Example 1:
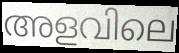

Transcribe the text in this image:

അളവിലെ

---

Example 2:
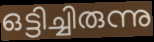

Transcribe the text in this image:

ഒട്ടിച്ചിരുന്നു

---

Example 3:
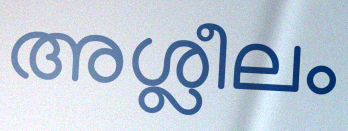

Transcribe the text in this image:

അശ്ലീലം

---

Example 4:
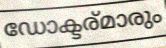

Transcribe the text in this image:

ഡോക്ടര്മാരും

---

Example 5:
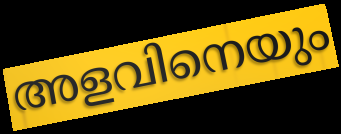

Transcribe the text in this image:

അളവിനെയും